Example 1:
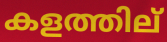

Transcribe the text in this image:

കളത്തില്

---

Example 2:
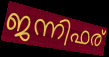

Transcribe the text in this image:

ജന്നിഫര്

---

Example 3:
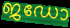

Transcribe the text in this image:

ജഡോ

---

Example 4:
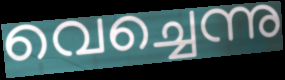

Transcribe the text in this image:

വെച്ചെന്നു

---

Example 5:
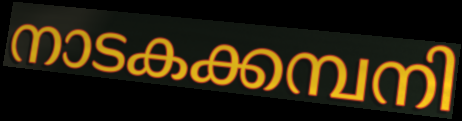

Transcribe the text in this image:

നാടകക്കമ്പനി